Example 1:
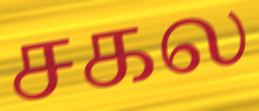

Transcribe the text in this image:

சகல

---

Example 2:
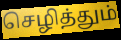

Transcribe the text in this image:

செழித்தும்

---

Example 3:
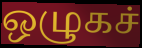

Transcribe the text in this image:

ஒழுகச்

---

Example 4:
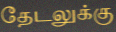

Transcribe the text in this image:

தேடலுக்கு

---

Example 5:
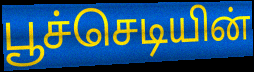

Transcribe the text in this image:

பூச்செடியின்